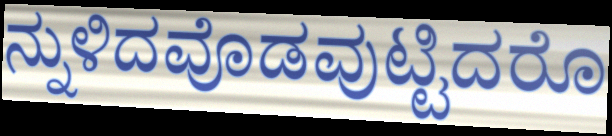
ನ್ನುಳಿದವೊಡವುಟ್ಟಿದರೊ